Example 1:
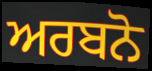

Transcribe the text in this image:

ਅਰਬਨੋ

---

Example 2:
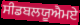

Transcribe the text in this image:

ਸੀਡਬਲਯੂਐਮਏ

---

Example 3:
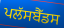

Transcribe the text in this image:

ਪਲੱਸਬੈੱਡਸ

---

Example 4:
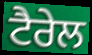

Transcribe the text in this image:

ਟੈਰੇਲ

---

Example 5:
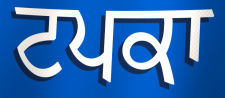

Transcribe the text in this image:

ਟਪਕਾ